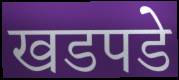
खडपडे